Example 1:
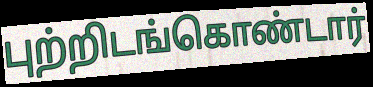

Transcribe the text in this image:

புற்றிடங்கொண்டார்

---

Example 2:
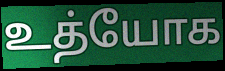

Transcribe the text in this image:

உத்யோக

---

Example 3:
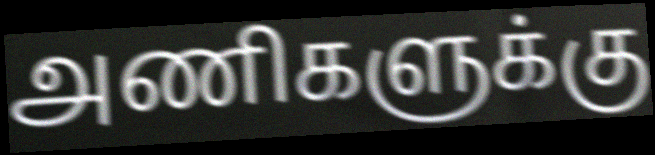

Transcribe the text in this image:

அணிகளுக்கு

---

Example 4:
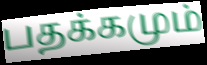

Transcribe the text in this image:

பதக்கமும்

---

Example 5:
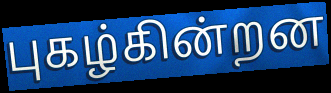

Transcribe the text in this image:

புகழ்கின்றன